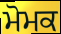
ਮੋਮਕ